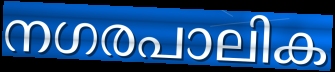
നഗരപാലിക